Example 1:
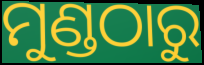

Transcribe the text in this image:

ମୁଣ୍ଡଠାରୁ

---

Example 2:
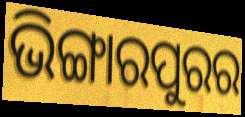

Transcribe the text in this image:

ଭିଙ୍ଗାରପୁରର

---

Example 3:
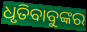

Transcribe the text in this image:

ଧୃତିବାବୁଙ୍କର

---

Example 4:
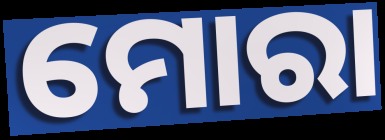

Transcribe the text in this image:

ମୋରା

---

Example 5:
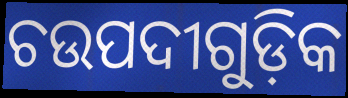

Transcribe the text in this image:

ଚଉପଦୀଗୁଡ଼ିକ